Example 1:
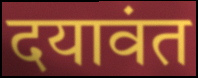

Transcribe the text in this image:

दयावंत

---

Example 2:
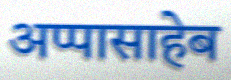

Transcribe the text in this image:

अप्पासाहेब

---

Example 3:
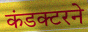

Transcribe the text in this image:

कंडक्टरने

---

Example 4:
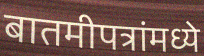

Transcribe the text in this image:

बातमीपत्रांमध्ये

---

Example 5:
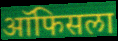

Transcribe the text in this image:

ऑफिसला